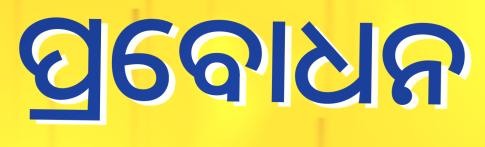
ପ୍ରବୋଧନ